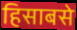
हिसाबसे